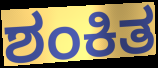
ಶಂಕಿತ